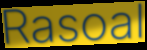
Rasoal